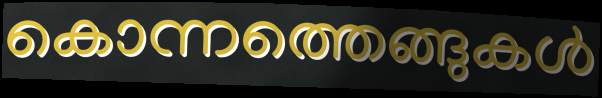
കൊന്നത്തെങ്ങുകൾ